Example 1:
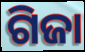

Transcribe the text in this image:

ଗିଜା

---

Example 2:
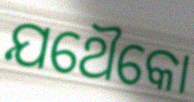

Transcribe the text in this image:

ଯଥୈକୋ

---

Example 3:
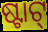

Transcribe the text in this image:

ଷ୍ଟାଟ୍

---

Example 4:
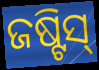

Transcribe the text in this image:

ଜଷ୍ଟିସ୍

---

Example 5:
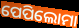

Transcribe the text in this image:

ପେପିଲୋମା